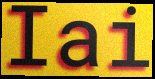
Iai